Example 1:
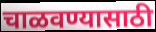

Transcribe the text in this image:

चाळवण्यासाठी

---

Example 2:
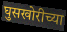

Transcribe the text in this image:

घुसखोरीच्या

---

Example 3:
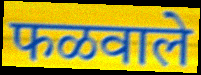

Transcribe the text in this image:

फळवाले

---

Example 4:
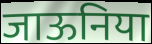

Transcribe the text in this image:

जाऊनिया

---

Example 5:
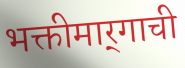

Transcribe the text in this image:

भक्तीमार्गाची